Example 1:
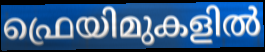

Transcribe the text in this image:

ഫ്രെയിമുകളിൽ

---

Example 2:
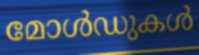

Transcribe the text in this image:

മോൾഡുകൾ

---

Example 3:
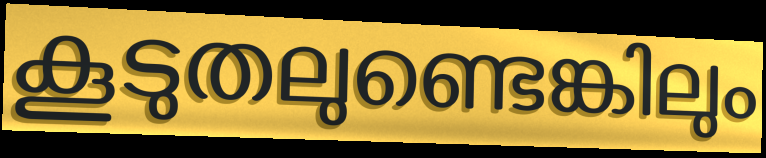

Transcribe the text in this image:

കൂടുതലുണ്ടെങ്കിലും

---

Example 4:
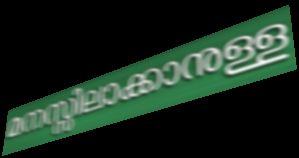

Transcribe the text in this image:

മനസ്സിലാക്കാനുള്ള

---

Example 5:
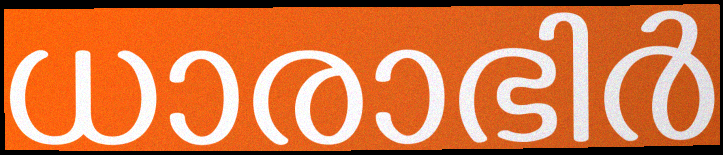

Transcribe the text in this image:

ധാരാഭിർ